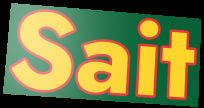
Sait